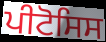
ਪੀਟੋਸਿਸ